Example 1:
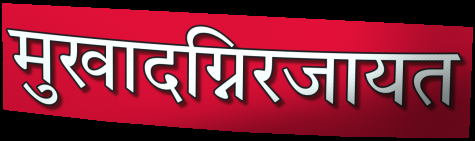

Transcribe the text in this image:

मुखादग्निरजायत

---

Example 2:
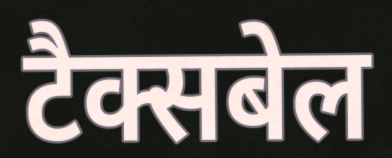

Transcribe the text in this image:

टैक्सबेल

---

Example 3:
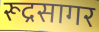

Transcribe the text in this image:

रूद्रसागर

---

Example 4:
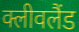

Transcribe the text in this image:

क्लीवलैंड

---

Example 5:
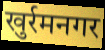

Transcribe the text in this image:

खुर्रमनगर